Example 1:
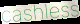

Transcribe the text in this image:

cashless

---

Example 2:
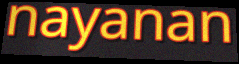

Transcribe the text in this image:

nayanan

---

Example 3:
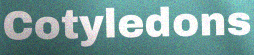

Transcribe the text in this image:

Cotyledons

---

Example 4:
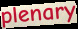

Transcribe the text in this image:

plenary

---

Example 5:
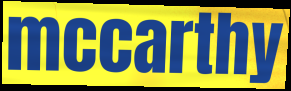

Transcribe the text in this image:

mccarthy